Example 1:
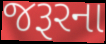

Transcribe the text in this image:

જરૂરના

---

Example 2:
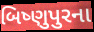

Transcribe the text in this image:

બિષ્ણુપુરના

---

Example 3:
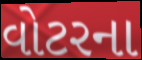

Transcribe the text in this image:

વોટરના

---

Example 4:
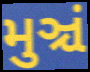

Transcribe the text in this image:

મુઞ્ચં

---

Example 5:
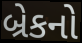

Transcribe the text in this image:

બ્રેકનો